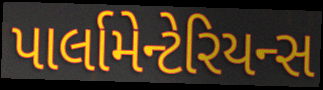
પાર્લામેન્ટેરિયન્સ